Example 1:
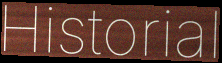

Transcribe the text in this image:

Historial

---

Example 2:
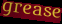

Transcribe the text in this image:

grease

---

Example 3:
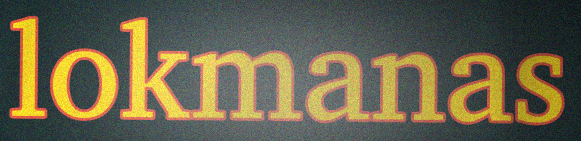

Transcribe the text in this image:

lokmanas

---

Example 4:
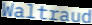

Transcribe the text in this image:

Waltraud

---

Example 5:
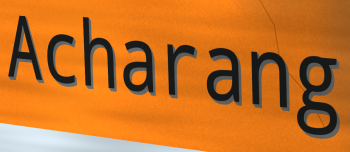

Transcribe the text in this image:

Acharang